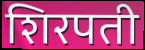
शिरपती